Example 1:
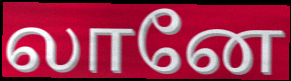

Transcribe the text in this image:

லானே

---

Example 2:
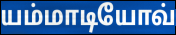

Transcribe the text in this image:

யம்மாடியோவ்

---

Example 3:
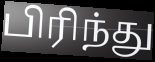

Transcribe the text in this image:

பிரிந்து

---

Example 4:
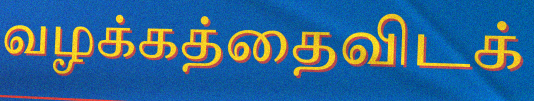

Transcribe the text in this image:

வழக்கத்தைவிடக்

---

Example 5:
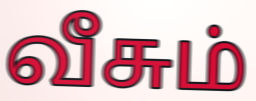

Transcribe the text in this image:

வீசும்